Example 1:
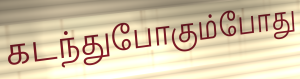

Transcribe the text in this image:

கடந்துபோகும்போது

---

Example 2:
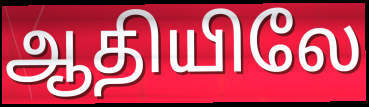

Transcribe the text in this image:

ஆதியிலே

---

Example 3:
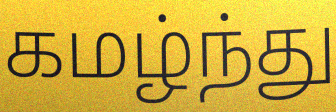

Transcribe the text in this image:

கமழ்ந்து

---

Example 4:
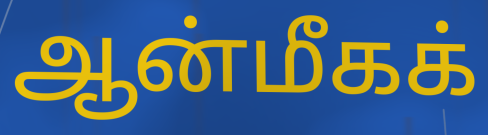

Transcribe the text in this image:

ஆன்மீகக்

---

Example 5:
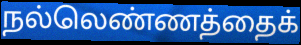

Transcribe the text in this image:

நல்லெண்ணத்தைக்